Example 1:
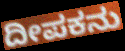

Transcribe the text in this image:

ದೀಪಕನು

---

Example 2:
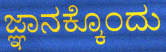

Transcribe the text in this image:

ಜ್ಞಾನಕ್ಕೊಂದು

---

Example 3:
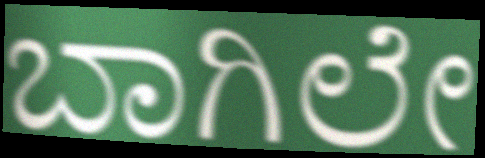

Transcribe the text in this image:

ಬಾಗಿಲೇ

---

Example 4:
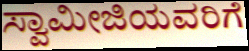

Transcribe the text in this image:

ಸ್ವಾಮೀಜಿಯವರಿಗೆ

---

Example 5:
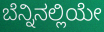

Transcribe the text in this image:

ಬೆನ್ನಿನಲ್ಲಿಯೇ